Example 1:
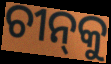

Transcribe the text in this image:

ଚୀନ୍‌କୁ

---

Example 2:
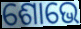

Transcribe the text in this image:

ଶୋଭେ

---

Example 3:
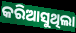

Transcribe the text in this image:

କରିଆସୁଥିଲା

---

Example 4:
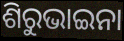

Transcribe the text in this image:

ଶିରୁଭାଇନା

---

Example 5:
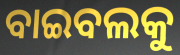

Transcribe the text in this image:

ବାଇବଲକୁ